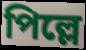
পিল্লে